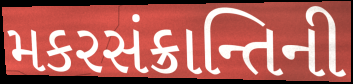
મકરસંક્રાન્તિની